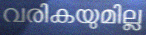
വരികയുമില്ല